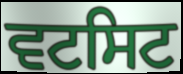
ਵਟਸਿਟ